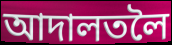
আদালতলৈ